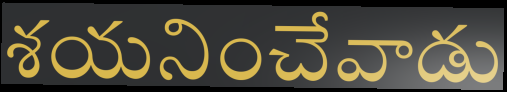
శయనించేవాడు